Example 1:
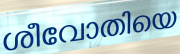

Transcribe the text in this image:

ശീവോതിയെ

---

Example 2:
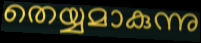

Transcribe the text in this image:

തെയ്യമാകുന്നു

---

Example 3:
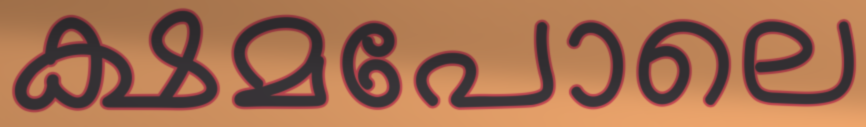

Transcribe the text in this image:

ക്ഷമപോലെ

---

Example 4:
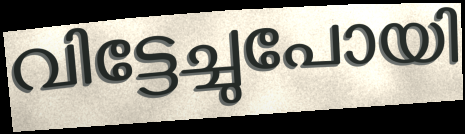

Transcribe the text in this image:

വിട്ടേച്ചുപോയി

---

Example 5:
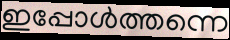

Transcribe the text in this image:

ഇപ്പോൾത്തന്നെ